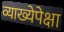
व्याख्येपेक्षा